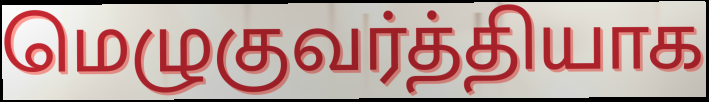
மெழுகுவர்த்தியாக